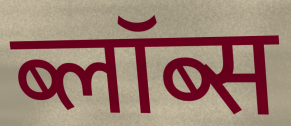
ब्लॉब्स